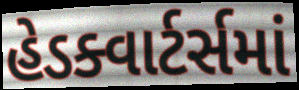
હેડક્વાર્ટર્સમાં